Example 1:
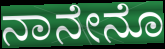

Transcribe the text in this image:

ನಾನೇನೊ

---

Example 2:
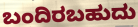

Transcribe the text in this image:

ಬಂದಿರಬಹುದು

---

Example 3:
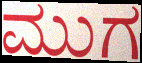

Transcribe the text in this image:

ಮುಗ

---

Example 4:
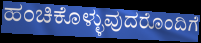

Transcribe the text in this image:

ಹಂಚಿಕೊಳ್ಳುವುದರೊಂದಿಗೆ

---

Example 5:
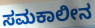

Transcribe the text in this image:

ಸಮಕಾಲೀನ